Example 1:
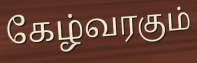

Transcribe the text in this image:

கேழ்வரகும்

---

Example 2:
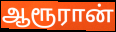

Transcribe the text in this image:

ஆரூரான்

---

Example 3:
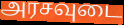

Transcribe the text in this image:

அரசவுடை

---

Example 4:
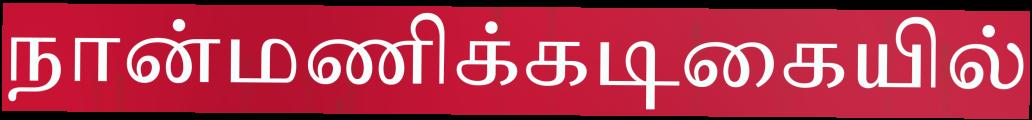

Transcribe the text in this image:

நான்மணிக்கடிகையில்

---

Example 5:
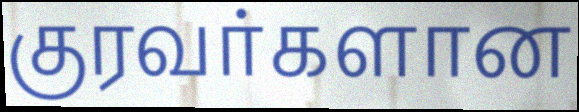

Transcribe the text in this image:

குரவர்களான